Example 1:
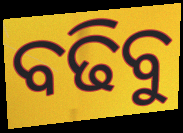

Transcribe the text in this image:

ବଢିବୁ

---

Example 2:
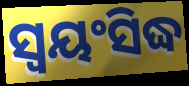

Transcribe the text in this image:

ସ୍ୱୟଂସିଦ୍ଧ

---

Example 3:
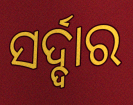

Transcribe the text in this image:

ସର୍ଦ୍ଦାର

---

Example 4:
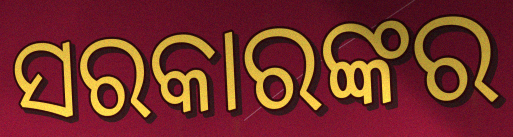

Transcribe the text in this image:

ସରକାରଙ୍କର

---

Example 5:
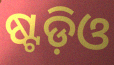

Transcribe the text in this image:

ଷ୍ଟଡ଼ିଓ